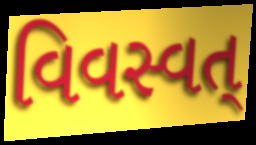
વિવસ્વત્